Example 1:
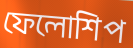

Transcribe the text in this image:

ফেলোশিপ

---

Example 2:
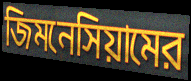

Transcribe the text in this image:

জিমনেসিয়ামের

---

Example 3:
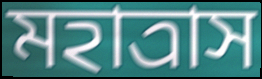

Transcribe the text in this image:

মহাত্রাস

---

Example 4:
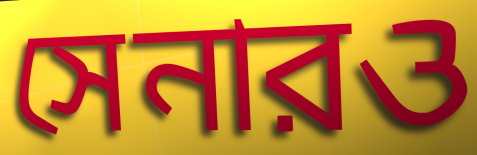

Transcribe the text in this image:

সেনারও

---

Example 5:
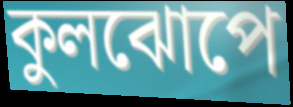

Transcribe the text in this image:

কুলঝোপে